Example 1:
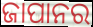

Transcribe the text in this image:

ଜାପାନର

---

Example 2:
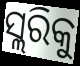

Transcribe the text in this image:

ସ୍ଲରିକୁ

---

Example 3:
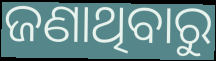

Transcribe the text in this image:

ଜଣାଥିବାରୁ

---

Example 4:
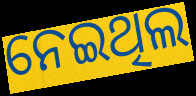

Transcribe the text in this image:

ନେଇଥିଲ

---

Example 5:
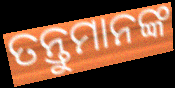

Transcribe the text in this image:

ତନ୍ତୁମାନଙ୍କ